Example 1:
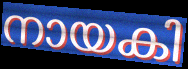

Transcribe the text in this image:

നായകി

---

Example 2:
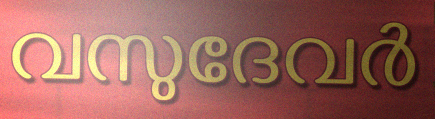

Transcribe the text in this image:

വസുദേവർ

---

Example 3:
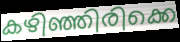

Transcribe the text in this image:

കഴിഞ്ഞിരിക്കെ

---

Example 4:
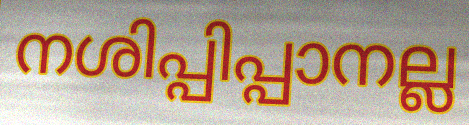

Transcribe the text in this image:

നശിപ്പിപ്പാനല്ല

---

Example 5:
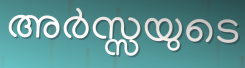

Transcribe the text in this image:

അർസ്സയുടെ